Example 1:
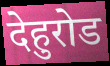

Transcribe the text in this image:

देहुरोड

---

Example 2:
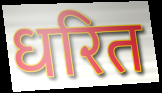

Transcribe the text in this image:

धरित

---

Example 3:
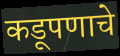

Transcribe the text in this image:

कडूपणाचे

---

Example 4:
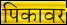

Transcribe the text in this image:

पिकावर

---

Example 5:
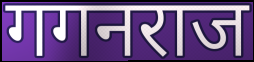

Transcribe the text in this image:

गगनराज